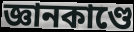
জ্ঞানকাণ্ডে